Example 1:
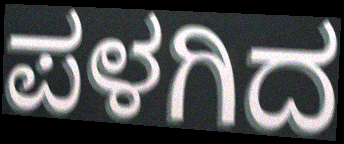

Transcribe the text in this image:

ಪಳಗಿದ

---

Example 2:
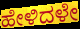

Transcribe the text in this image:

ಹೇಳಿದಳೇ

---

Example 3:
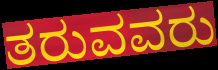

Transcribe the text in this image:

ತರುವವರು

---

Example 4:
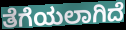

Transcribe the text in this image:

ತೆಗೆಯಲಾಗಿದೆ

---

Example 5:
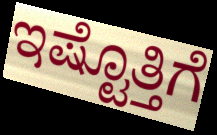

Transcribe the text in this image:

ಇಷ್ಟೊತ್ತಿಗೆ